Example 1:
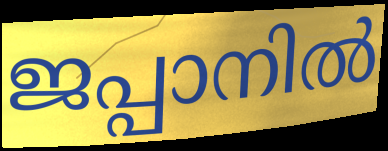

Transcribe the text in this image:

ജപ്പാനിൽ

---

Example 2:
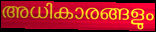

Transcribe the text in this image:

അധികാരങ്ങളും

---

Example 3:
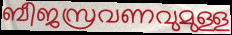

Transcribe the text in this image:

ബീജസ്രവണവുമുള്ള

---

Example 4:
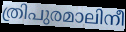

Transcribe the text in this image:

ത്രിപുരമാലിനീ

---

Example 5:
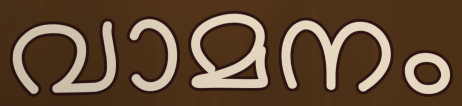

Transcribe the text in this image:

വാമനം